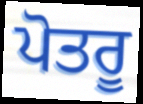
ਪੋਤਰੂ